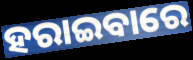
ହରାଇବାରେ